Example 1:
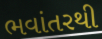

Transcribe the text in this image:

ભવાંતરથી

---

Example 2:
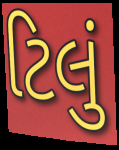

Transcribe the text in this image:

ટિલું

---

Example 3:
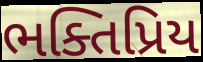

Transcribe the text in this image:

ભક્તિપ્રિય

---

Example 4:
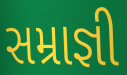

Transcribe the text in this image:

સમ્રાજ્ઞી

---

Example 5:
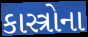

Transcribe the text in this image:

કાસ્ત્રોના